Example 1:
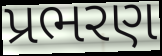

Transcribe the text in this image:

પ્રભરણ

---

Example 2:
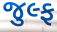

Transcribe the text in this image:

જુલ્ફ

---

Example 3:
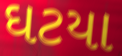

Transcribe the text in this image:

ઘટયા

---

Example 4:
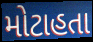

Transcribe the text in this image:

મોટાહતા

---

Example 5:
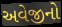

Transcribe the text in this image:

અવેજીનો